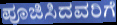
ಪೂಜಿಸಿದವರಿಗೆ